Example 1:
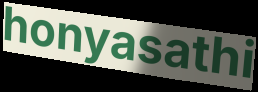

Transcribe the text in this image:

honyasathi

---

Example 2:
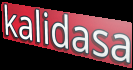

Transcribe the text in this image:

kalidasa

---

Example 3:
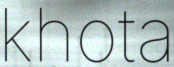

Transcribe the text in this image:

khota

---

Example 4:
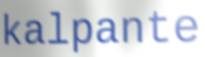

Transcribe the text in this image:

kalpante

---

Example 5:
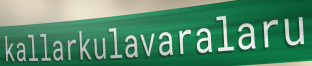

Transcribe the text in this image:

kallarkulavaralaru